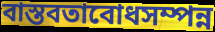
বাস্তবতাবোধসম্পন্ন